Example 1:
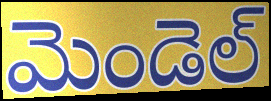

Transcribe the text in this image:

మెండెల్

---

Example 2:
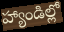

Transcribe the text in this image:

హ్యాండిల్లో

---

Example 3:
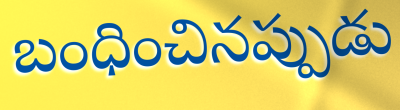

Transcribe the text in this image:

బంధించినప్పుడు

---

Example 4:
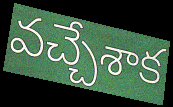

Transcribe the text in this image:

వచ్చేశాక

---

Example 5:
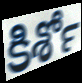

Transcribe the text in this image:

కిశోర్‍